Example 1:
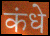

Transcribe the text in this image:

कंधे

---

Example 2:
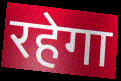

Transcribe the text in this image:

रहेगा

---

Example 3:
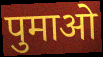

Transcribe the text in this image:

पुमाओ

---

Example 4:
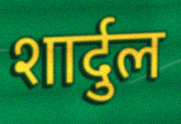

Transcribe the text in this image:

शार्दुल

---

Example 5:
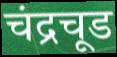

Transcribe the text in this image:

चंद्रचूड